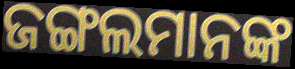
ଜଙ୍ଗଲମାନଙ୍କ